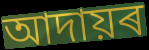
আদায়ৰ